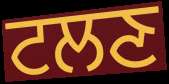
ਟਲਣ